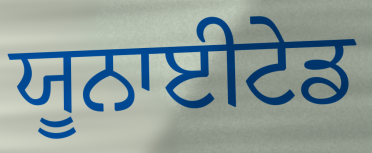
ਯੂਨਾਈਟੇਡ